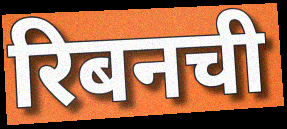
रिबनची